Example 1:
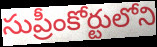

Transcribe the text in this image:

సుప్రీంకోర్టులోని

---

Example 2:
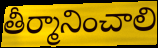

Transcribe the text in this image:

తీర్మానించాలి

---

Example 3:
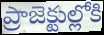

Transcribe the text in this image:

ప్రాజెక్టుల్లోకి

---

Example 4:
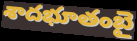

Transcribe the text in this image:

శాదభూతంబై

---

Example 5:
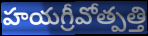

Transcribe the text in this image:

హయగ్రీవోత్పత్తి